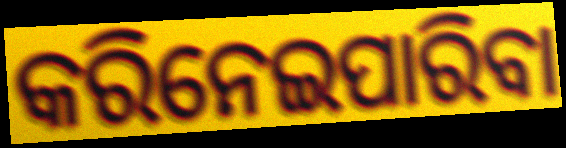
କରିନେଇପାରିବା